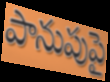
పానుపుపై